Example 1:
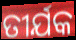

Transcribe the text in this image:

ତୀର୍ଯକ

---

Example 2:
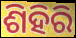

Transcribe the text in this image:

ଶିହିରି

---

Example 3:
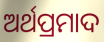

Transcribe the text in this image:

ଅର୍ଥପ୍ରମାଦ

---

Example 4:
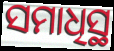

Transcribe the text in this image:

ସମାଧିସ୍ଥ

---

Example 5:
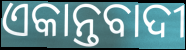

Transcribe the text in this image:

ଏକାନ୍ତବାଦୀ